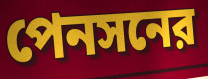
পেনসনের